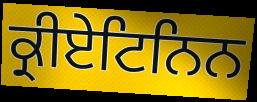
ਕ੍ਰੀਏਟਿਨਿਨ